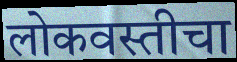
लोकवस्तीचा